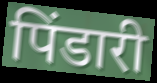
पिंडारी